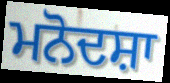
ਮਨੋਦਸ਼ਾ